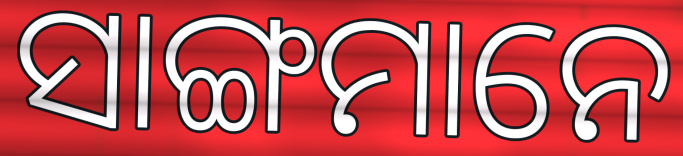
ସାଙ୍ଗମାନେ